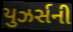
યુઝર્સની